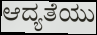
ಆದ್ಯತೆಯು